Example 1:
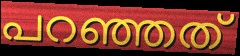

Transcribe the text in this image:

പറഞ്ഞത്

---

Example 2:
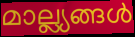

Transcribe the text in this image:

മാല്ല്യങ്ങൾ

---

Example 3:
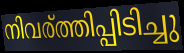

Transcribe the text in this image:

നിവര്ത്തിപ്പിടിച്ചു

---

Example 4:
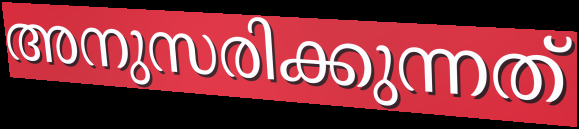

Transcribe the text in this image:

അനുസരിക്കുന്നത്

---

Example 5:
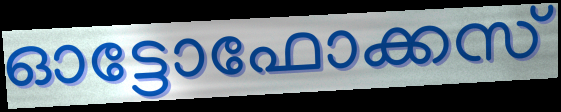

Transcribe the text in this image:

ഓട്ടോഫോക്കസ്